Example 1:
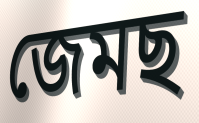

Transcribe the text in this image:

জেমছ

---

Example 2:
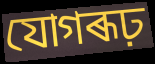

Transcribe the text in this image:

যোগৰূঢ়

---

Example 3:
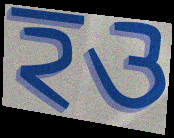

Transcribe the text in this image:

হও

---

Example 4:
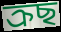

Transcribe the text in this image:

ক্ৰছ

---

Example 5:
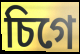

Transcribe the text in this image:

চিগে